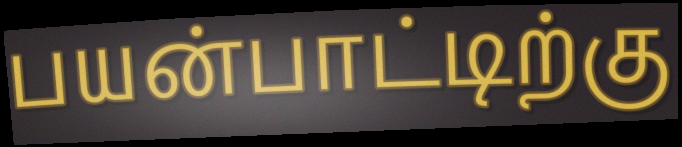
பயன்பாட்டிற்கு